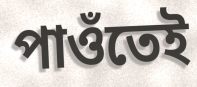
পাওঁতেই